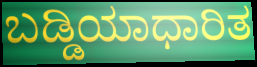
ಬಡ್ಡಿಯಾಧಾರಿತ